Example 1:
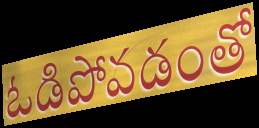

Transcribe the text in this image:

ఓడిపోవడంతో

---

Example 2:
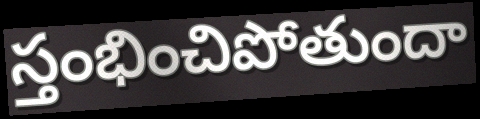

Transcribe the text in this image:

స్తంభించిపోతుందా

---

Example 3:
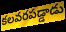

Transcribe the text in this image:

కలవరపడ్డాడు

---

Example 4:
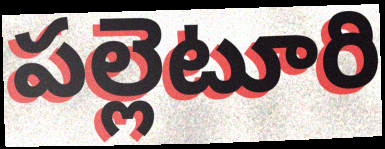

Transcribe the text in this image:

పల్లెటూరి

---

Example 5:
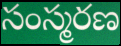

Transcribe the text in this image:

సంస్మరణ